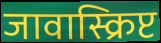
जावास्क्रिप्ट